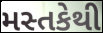
મસ્તકેથી